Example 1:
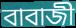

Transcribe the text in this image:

বাবাজী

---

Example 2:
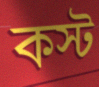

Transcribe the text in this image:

কস্ট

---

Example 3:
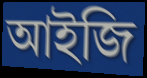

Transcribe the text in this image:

আইজি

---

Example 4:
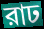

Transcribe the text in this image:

রাঢ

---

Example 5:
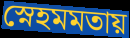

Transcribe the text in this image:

স্নেহমমতায়